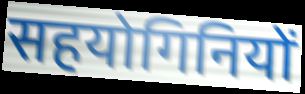
सहयोगिनियों